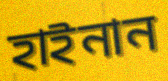
হাইনান